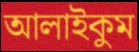
আলাইকুম